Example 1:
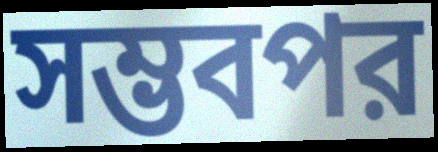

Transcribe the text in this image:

সম্ভবপর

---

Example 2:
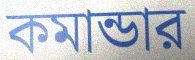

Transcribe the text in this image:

কমান্ডার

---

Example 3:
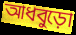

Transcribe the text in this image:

আধবুড়ো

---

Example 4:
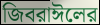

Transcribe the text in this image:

জিবরাঈলের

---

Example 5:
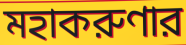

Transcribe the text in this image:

মহাকরুণার